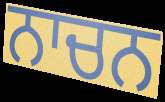
ਨਾਚਨ